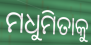
ମଧୁମିତାକୁ